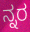
ನ್ನರ